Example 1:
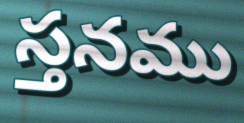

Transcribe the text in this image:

స్తనము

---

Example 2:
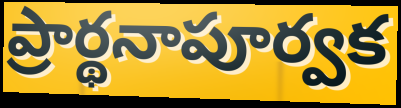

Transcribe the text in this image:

ప్రార్థనాపూర్వక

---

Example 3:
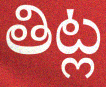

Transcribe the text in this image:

తిట్ల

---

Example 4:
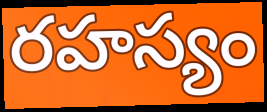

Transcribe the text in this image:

రహస్యం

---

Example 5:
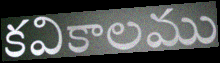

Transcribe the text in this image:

కవికాలము